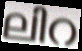
ലിറ